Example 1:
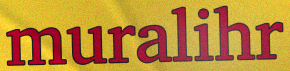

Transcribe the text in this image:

muralihr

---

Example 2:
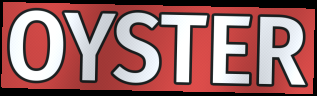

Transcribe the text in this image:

OYSTER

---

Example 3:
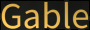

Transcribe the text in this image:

Gable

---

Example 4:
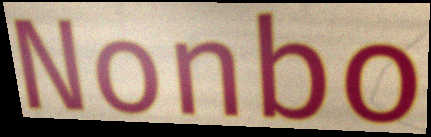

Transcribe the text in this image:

Nonbo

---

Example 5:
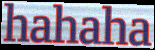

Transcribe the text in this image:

hahaha